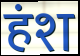
हंश